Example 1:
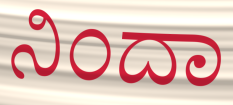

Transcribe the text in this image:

ನಿಂದಾ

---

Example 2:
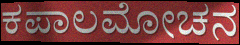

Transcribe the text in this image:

ಕಪಾಲಮೋಚನ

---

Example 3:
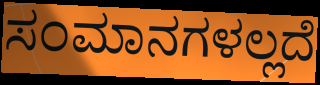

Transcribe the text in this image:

ಸಂಮಾನಗಳಲ್ಲದೆ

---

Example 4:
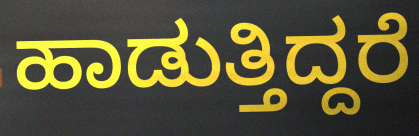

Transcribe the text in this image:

ಹಾಡುತ್ತಿದ್ದರೆ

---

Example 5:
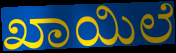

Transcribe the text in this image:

ಖಾಯಿಲೆ